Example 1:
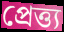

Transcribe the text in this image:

প্রেত্ত্য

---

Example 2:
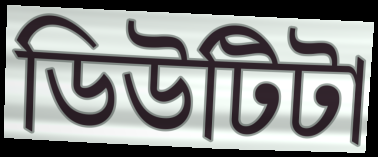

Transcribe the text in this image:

ডিউটিটা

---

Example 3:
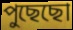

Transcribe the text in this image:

পুছেছো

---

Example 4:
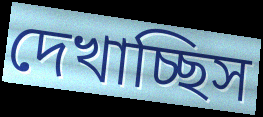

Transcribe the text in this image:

দেখাচ্ছিস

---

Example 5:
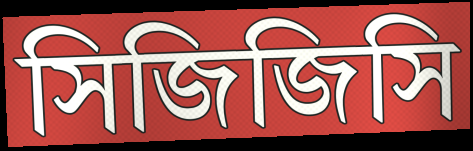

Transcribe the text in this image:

সিজিজিসি